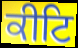
ਕੀਟਿ